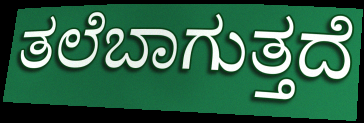
ತಲೆಬಾಗುತ್ತದೆ